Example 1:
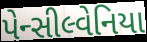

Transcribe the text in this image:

પેન્સીલ્વેનિયા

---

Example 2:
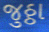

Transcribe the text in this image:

જુઠ્ઠા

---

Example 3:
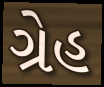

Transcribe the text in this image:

ગ્રેહ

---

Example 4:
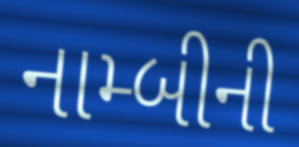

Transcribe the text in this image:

નામ્બીની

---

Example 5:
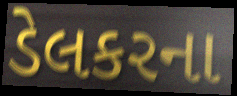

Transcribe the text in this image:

ડેલકરના